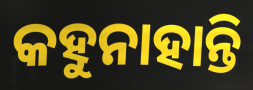
କହୁନାହାନ୍ତି